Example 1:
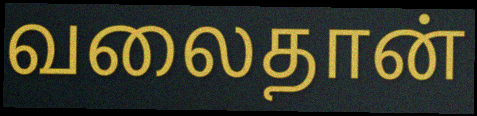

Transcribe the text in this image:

வலைதான்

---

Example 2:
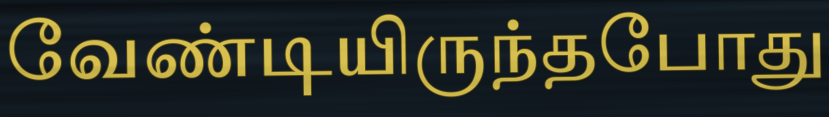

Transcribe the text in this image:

வேண்டியிருந்தபோது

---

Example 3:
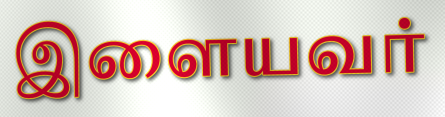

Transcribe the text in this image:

இளையவர்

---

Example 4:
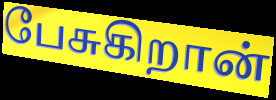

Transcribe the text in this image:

பேசுகிறான்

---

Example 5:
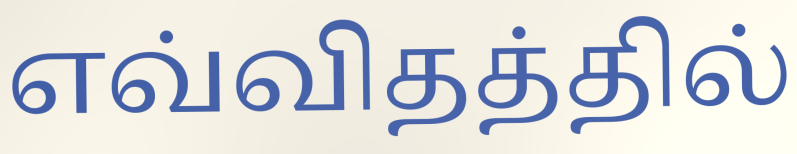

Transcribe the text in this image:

எவ்விதத்தில்